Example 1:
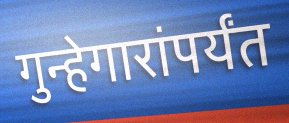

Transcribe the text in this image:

गुन्हेगारांपर्यंत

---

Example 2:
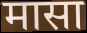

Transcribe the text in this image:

मासा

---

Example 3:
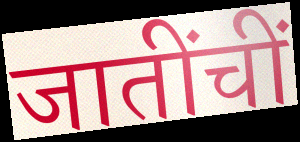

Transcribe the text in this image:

जातींचीं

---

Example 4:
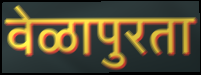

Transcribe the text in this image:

वेळापुरता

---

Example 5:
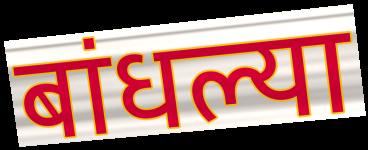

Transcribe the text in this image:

बांधल्या